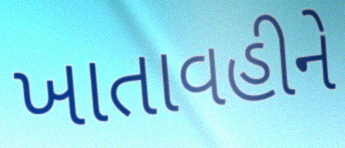
ખાતાવહીને